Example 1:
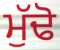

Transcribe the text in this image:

ਮੁੱਢੋ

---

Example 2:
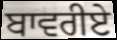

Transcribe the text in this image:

ਬਾਵਰੀਏ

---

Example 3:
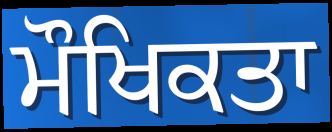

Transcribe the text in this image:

ਮੌਖਿਕਤਾ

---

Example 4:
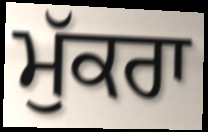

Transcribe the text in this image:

ਮੁੱਕਰਾ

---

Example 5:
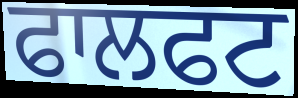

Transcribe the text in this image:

ਫਾਲਫਟ